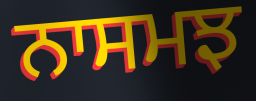
ਨਾਸਮਝ